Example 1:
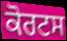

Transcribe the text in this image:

ਕੋਰਟਸ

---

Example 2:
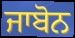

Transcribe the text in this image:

ਜਾਬੋਨ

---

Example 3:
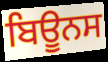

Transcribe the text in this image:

ਬਿਊਨਸ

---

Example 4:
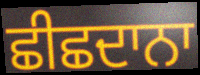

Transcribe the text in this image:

ਛੀਛਦਾਨਾ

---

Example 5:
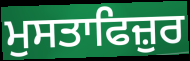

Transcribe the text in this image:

ਮੁਸਤਾਫਿਜ਼ੁਰ